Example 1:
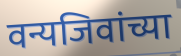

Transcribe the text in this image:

वन्यजिवांच्या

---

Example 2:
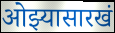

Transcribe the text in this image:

ओझ्यासारखं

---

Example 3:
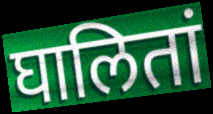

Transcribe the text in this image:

घालितां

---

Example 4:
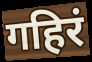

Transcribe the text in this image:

गहिरं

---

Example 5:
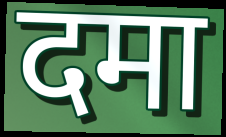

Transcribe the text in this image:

दमा